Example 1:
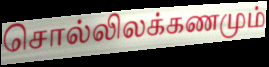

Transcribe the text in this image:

சொல்லிலக்கணமும்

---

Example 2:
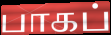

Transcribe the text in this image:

பாகப்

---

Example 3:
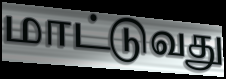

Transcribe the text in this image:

மாட்டுவது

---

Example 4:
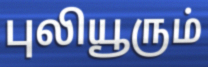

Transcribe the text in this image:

புலியூரும்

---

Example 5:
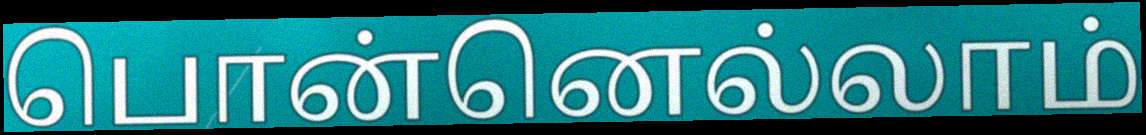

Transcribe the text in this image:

பொன்னெல்லாம்